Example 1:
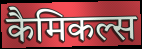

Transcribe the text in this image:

कैमिकल्स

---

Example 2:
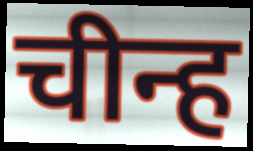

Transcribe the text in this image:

चीन्ह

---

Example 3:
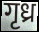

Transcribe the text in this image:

गृध्र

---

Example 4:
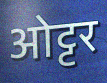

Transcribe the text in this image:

ओट्टर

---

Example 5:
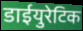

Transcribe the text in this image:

डाईयुरेटिक